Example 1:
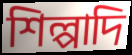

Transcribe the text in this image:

শিল্পাদি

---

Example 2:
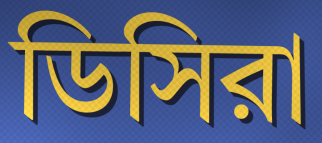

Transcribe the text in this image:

ডিসিরা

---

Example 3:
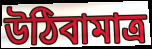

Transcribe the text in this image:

উঠিবামাত্র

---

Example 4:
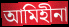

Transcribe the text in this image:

আমিহীনা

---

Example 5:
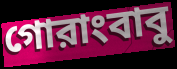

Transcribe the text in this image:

গোরাংবাবু